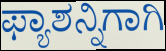
ಫ್ಯಾಶನ್ನಿಗಾಗಿ